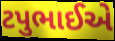
ટપુભાઈએ